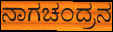
ನಾಗಚಂದ್ರನ